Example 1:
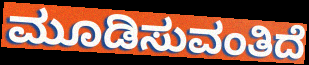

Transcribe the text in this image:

ಮೂಡಿಸುವಂತಿದೆ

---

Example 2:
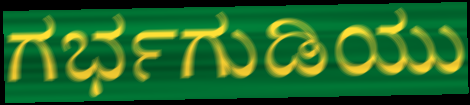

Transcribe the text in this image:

ಗರ್ಭಗುಡಿಯು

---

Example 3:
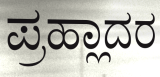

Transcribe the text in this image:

ಪ್ರಹ್ಲಾದರ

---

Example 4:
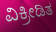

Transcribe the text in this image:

ವಿಕ್ರೀಡಿತ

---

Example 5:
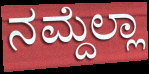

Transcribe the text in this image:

ನಮ್ದೆಲ್ಲಾ